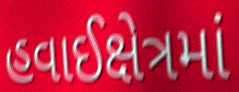
હવાઈક્ષેત્રમાં